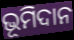
ଭୂମିଦାନ